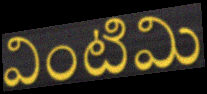
వింటిమి